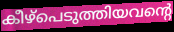
കീഴ്പെടുത്തിയവന്റെ